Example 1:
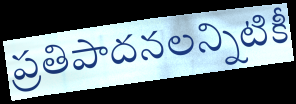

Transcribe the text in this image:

ప్రతిపాదనలన్నిటికీ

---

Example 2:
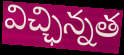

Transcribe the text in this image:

విచ్ఛిన్నత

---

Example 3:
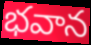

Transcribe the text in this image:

భవాన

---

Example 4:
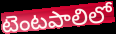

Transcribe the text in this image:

టెంటపాలిలో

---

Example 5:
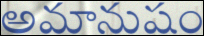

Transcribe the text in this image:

అమానుషం